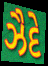
ઝૈદે